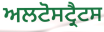
ਅਲਟੋਸਟ੍ਰੈਟਸ